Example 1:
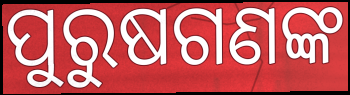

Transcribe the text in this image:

ପୁରୁଷଗଣଙ୍କ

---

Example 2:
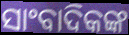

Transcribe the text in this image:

ସାଂବାଦିକଙ୍କ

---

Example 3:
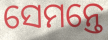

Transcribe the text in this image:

ସେମନ୍ତେ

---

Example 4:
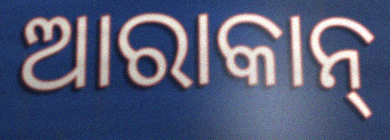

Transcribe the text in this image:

ଆରାକାନ୍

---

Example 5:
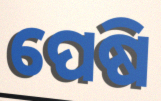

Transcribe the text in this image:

ପେଷି